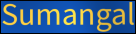
Sumangal